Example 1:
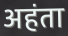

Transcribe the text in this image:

अहंता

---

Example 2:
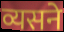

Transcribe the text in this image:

व्यसने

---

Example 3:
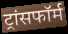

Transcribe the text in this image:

ट्रांसफॉर्म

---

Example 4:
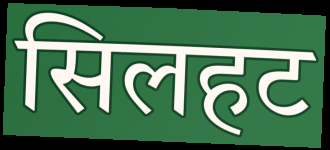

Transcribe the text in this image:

सिलहट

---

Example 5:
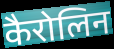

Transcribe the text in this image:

कैरोलिन